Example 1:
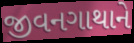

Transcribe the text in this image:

જીવનગાથાને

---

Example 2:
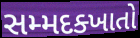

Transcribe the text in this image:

સમ્મદક્ખાતો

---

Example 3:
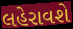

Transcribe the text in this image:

લહેરાવશે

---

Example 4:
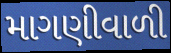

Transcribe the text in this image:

માગણીવાળી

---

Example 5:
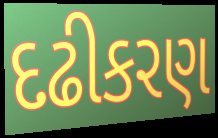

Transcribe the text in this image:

દઢીકરણ